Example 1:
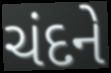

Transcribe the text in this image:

ચંદને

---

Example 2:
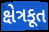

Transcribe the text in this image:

ક્ષેત્રકૂત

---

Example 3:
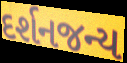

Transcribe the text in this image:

દર્શનજન્ય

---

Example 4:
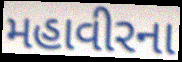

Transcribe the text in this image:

મહાવીરના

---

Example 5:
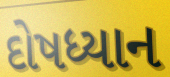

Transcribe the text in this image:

દોષધ્યાન